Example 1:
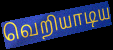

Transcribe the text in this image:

வெறியாடிய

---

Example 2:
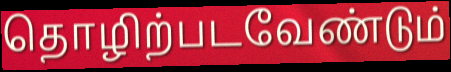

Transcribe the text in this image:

தொழிற்படவேண்டும்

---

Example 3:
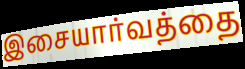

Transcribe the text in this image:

இசையார்வத்தை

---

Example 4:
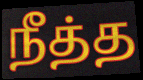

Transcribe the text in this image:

நீத்த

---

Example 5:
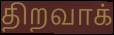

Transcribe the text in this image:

திறவாக்